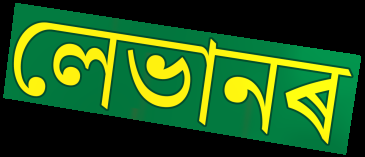
লেভানৰ